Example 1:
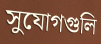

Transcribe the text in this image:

সুযোগগুলি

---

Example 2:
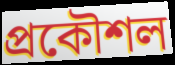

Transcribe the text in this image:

প্রকৌশল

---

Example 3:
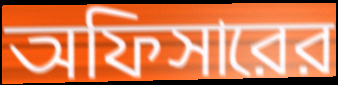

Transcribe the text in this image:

অফিসারের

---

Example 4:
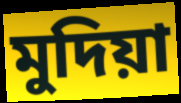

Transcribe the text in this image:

মুদিয়া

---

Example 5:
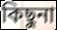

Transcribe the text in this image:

কিছুনা